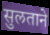
सुलताने